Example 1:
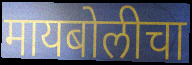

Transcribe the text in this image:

मायबोलीचा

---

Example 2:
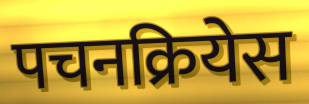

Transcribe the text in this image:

पचनक्रियेस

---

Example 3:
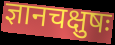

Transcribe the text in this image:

ज्ञानचक्षुषः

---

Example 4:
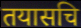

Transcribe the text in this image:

तयासचि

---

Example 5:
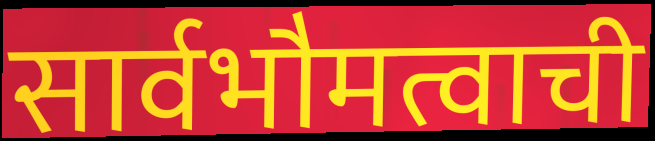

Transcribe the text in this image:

सार्वभौमत्वाची